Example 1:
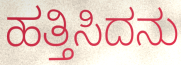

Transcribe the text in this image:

ಹತ್ತಿಸಿದನು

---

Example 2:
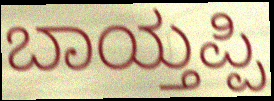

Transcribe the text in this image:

ಬಾಯ್ತಪ್ಪಿ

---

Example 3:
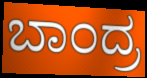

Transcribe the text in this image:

ಬಾಂದ್ರ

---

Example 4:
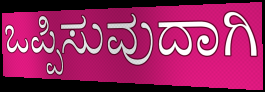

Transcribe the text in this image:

ಒಪ್ಪಿಸುವುದಾಗಿ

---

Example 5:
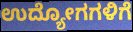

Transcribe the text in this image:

ಉದ್ಯೋಗಗಳಿಗೆ